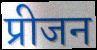
प्रीजन